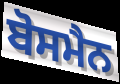
ਬੋਸਮੈਨ